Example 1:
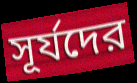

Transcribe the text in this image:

সূর্যদের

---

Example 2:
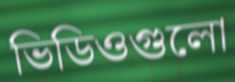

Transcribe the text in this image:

ভিডিওগুলো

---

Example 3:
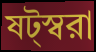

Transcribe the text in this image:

ষট্স্বরা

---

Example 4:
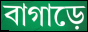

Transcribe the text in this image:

বাগাড়ে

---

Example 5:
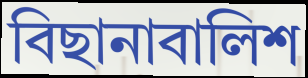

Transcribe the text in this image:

বিছানাবালিশ